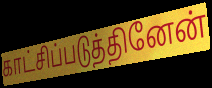
காட்சிப்படுத்தினேன்